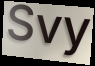
Svy